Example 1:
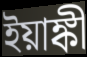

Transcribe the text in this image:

ইয়াঙ্কী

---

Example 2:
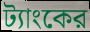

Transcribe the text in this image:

ট্যাংকের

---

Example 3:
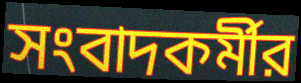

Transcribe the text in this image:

সংবাদকর্মীর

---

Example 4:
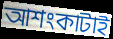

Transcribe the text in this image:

আশংকাটাই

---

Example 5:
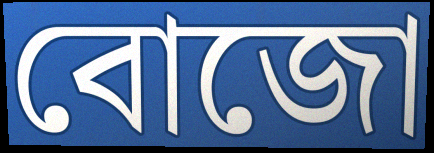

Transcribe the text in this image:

বোজো